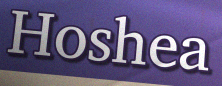
Hoshea